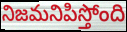
నిజమనిపిస్తోంది